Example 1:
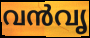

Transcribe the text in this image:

വൻവൃ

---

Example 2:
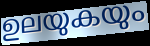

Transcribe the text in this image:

ഉലയുകയും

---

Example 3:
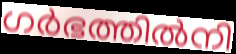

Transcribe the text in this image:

ഗർഭത്തിൽനി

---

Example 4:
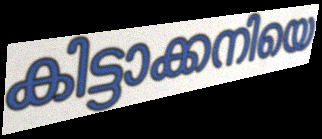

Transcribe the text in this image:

കിട്ടാക്കനിയെ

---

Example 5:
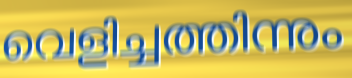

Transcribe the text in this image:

വെളിച്ചത്തിന്നും